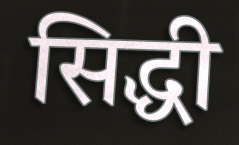
सिद्धी